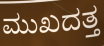
ಮುಖದತ್ತ